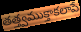
తత్త్వముక్తాకలాపే